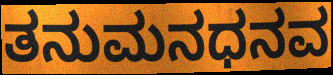
ತನುಮನಧನವ